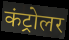
कंट्रोलर